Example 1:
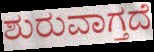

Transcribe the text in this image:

ಶುರುವಾಗ್ತದೆ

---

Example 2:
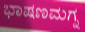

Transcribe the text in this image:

ಭಾಷಣಮಗ್ನ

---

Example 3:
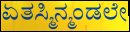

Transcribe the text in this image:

ಏತಸ್ಮಿನ್ಮಂಡಲೇ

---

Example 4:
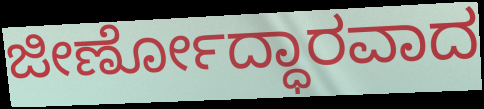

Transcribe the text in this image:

ಜೀರ್ಣೋದ್ಧಾರವಾದ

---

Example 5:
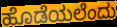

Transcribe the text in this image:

ಹೊಡೆಯಲೆಂದು